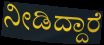
ನೀಡಿದ್ದಾರೆ